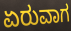
ಏರುವಾಗ